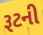
રૂટની